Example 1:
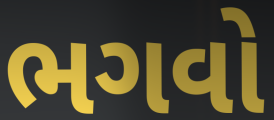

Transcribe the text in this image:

ભગવો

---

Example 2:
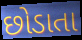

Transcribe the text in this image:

છોડાતા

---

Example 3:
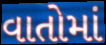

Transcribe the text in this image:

વાતોમાં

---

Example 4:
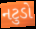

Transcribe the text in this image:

નટુડો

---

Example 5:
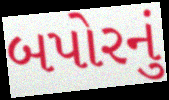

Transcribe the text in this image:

બપોરનું